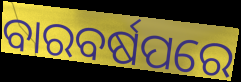
ବାରବର୍ଷପରେ